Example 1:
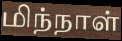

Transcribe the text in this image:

மிந்நாள்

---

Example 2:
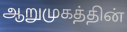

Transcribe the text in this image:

ஆறுமுகத்தின்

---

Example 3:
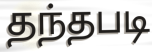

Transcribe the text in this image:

தந்தபடி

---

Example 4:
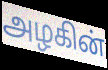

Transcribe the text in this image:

அழகின்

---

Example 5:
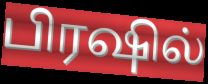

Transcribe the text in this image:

பிரஷில்